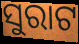
ସୁରାଟ